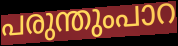
പരുന്തുംപാറ